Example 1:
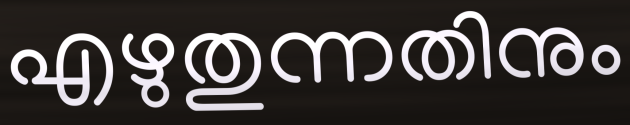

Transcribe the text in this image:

എഴുതുന്നതിനും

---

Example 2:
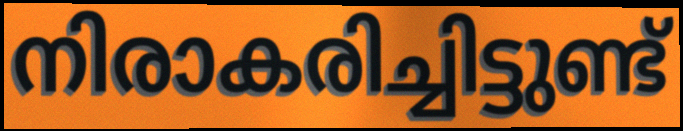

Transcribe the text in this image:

നിരാകരിച്ചിട്ടുണ്ട്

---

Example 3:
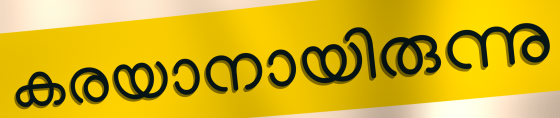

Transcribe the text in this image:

കരയാനായിരുന്നു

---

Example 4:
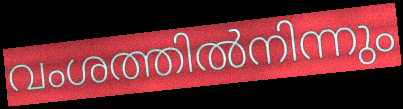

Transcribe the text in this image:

വംശത്തിൽനിന്നും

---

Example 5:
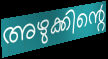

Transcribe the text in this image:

അഴുക്കിന്റെ